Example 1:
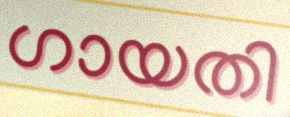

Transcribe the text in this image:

ഗായതി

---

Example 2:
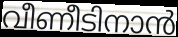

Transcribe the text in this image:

വീണീടിനാൻ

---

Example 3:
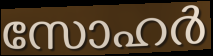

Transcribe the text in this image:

സോഹർ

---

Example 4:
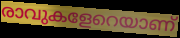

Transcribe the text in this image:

രാവുകളേറെയാണ്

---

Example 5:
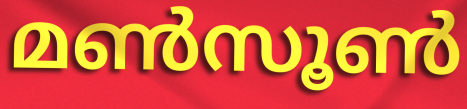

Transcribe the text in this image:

മൺസൂൺ